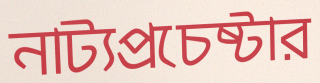
নাট্যপ্রচেষ্টার